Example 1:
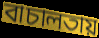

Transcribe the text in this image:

বাচালতায়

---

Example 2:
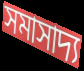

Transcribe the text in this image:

সমাসাদ্য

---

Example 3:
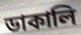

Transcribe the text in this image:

ডাকালি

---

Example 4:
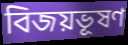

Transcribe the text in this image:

বিজয়ভূষণ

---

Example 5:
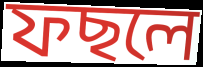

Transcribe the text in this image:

ফছলে